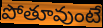
పోతూవుంటే